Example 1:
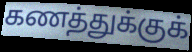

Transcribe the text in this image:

கணத்துக்குக்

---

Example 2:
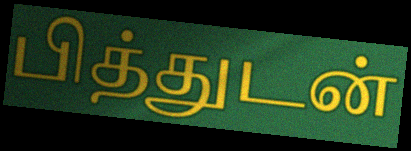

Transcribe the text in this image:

பித்துடன்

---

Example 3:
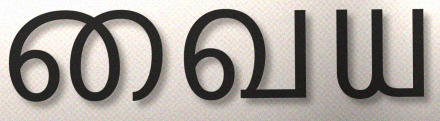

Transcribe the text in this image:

வைய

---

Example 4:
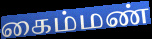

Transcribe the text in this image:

கைம்மண்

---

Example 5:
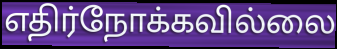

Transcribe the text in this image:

எதிர்நோக்கவில்லை